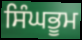
ਸਿੰਘਭੂਮ